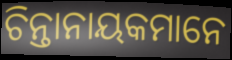
ଚିନ୍ତାନାୟକମାନେ